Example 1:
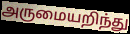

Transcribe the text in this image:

அருமையறிந்து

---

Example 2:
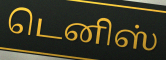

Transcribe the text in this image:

டெனிஸ்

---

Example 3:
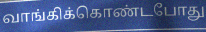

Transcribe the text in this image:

வாங்கிக்கொண்டபோது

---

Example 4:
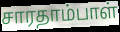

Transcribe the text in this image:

சாரதாம்பாள்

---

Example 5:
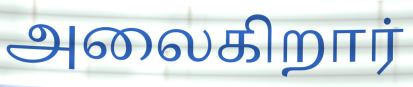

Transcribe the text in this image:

அலைகிறார்